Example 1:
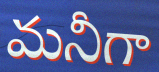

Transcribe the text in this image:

మనీగా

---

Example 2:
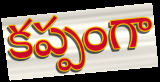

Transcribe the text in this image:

కప్పంగా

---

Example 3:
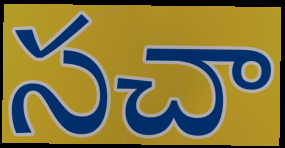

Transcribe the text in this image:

సచా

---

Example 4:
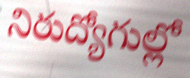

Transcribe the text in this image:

నిరుద్యోగుల్లో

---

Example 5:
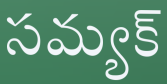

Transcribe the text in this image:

సమ్యక్